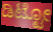
ಡಿಟ್ಟೋ